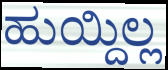
ಹುಯ್ದಿಲ್ಲ